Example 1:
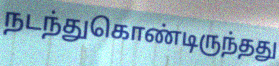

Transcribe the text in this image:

நடந்துகொண்டிருந்தது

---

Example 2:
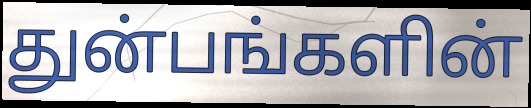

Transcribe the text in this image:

துன்பங்களின்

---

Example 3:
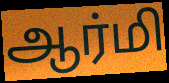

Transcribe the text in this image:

ஆர்மி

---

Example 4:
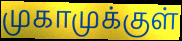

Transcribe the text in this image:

முகாமுக்குள்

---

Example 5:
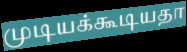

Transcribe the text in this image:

முடியக்கூடியதா